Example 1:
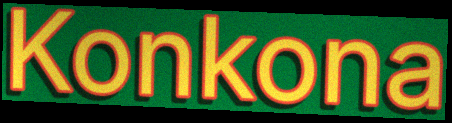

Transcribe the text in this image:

Konkona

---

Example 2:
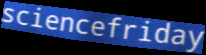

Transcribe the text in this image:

sciencefriday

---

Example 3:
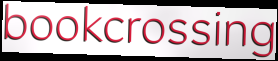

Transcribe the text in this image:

bookcrossing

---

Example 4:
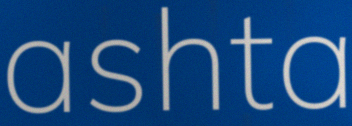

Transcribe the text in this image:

ashta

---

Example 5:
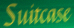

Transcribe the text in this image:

Suitcase